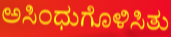
ಅಸಿಂಧುಗೊಳಿಸಿತು